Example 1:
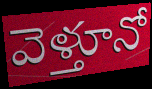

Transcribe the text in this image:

వెళ్తూనో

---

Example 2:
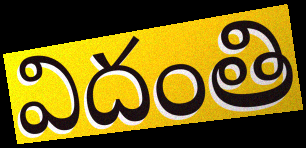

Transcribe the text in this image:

విదంతి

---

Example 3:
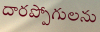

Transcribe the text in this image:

దారప్పోగులను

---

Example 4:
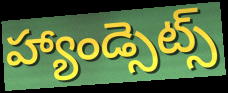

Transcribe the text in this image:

హ్యాండ్సెట్స్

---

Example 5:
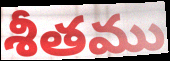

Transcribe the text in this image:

శీతము